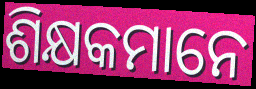
ଶିକ୍ଷକମାନେ